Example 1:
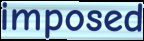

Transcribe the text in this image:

imposed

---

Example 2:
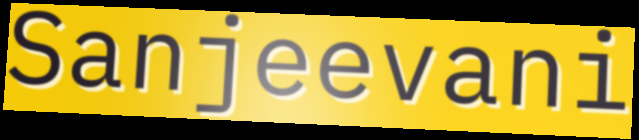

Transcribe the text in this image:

Sanjeevani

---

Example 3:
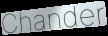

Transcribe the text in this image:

Chander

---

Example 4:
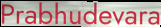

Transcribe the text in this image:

Prabhudevara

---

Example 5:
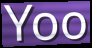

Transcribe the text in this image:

Yoo